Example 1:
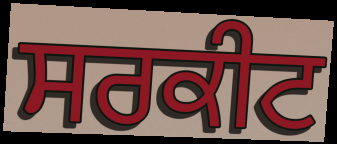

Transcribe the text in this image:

ਸਰਕੀਟ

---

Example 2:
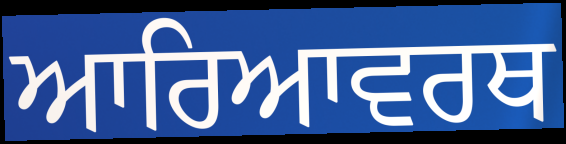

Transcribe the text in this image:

ਆਰਿਆਵਰਥ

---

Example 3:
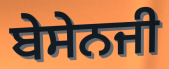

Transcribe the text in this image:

ਬੇਸੇਨਜੀ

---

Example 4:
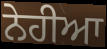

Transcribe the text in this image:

ਨੇਹੀਆ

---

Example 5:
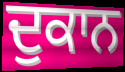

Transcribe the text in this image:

ਦੁਕਾਨ